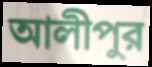
আলীপুর